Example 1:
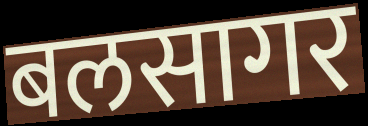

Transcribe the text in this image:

बलसागर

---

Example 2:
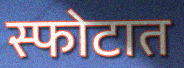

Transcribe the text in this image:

स्फोटात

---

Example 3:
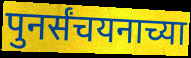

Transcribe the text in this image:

पुनर्संचयनाच्या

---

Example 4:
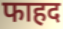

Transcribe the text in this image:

फाहद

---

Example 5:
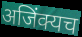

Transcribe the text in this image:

अजिंक्यच